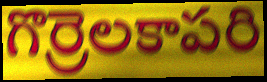
గొర్రెలకాపరి